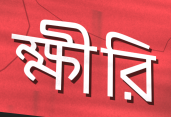
ক্ষীরি